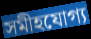
সমীহযোগ্য